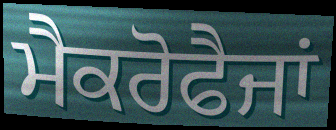
ਮੈਕਰੋਫੈਜਾਂ